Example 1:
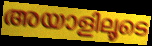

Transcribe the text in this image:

അയാളിലൂടെ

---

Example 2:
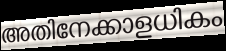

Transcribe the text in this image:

അതിനേക്കാളധികം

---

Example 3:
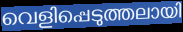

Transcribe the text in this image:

വെളിപ്പെടുത്തലായി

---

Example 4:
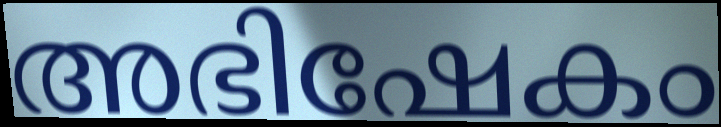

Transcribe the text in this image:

അഭിഷേകം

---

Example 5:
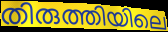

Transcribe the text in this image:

തിരുത്തിയിലെ